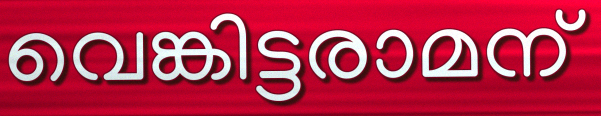
വെങ്കിട്ടരാമന്